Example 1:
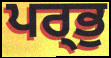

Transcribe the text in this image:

ਪਰ੍ਭੁ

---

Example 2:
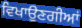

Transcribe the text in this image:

ਵਿਖਾਉਣਗੀਆਂ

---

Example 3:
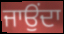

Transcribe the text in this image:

ਜਾਉਂਦਾ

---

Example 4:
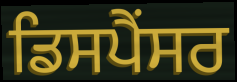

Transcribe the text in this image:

ਡਿਸਪੈਂਸਰ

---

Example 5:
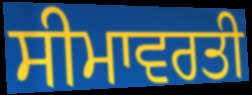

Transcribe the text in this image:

ਸੀਮਾਵਰਤੀ